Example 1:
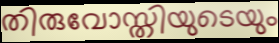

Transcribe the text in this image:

തിരുവോസ്തിയുടെയും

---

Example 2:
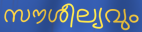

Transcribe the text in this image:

സൗശീല്യവും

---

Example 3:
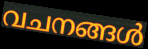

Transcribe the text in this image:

വചനങ്ങൾ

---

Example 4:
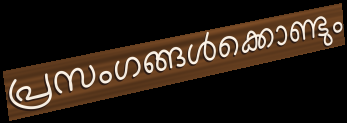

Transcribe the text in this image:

പ്രസംഗങ്ങൾക്കൊണ്ടും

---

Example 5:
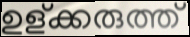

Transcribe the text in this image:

ഉള്ക്കരുത്ത്